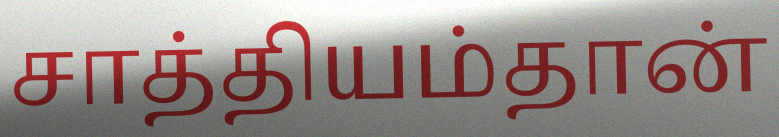
சாத்தியம்தான்